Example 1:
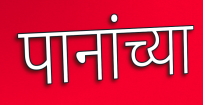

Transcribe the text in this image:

पानांच्या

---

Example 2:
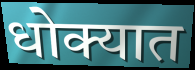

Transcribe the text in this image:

धोक्यात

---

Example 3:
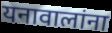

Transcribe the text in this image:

यनावालांना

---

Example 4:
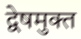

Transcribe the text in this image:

द्वेषमुक्त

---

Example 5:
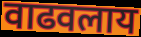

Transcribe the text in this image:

वाढवलाय